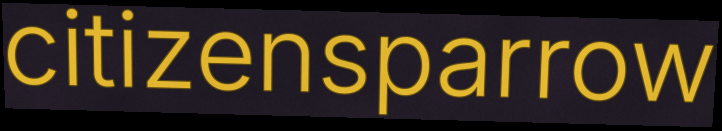
citizensparrow